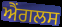
ਐਂਗਲਸ